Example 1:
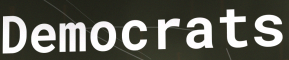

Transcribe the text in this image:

Democrats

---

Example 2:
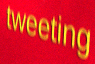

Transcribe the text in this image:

tweeting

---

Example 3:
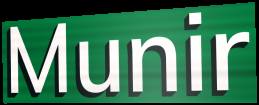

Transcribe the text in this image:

Munir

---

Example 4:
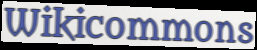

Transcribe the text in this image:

Wikicommons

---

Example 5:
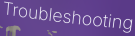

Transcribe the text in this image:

Troubleshooting